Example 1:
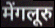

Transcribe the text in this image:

मेंगलूरु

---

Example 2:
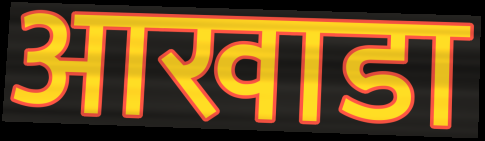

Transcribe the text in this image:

आखाडा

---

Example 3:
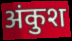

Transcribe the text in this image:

अंकुश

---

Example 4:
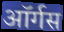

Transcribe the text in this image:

ऑर्गस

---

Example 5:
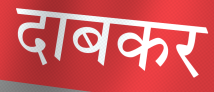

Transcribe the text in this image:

दाबकर